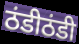
ठंडीठंडी